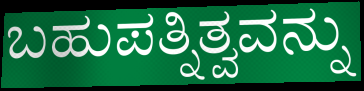
ಬಹುಪತ್ನಿತ್ವವನ್ನು